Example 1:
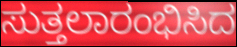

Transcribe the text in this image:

ಸುತ್ತಲಾರಂಭಿಸಿದ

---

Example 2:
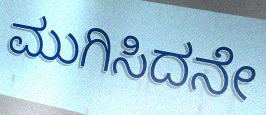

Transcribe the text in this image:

ಮುಗಿಸಿದನೇ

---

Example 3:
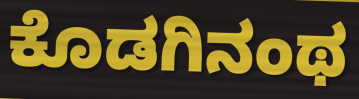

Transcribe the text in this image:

ಕೊಡಗಿನಂಥ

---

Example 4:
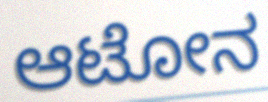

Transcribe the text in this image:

ಆಟೋನ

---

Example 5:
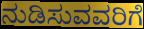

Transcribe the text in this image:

ನುಡಿಸುವವರಿಗೆ